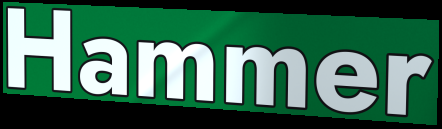
Hammer